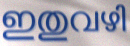
ഇതുവഴി